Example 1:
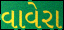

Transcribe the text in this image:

વાવેરા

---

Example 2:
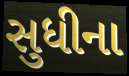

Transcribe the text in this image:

સુધીના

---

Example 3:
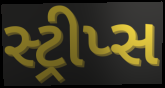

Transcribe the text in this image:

સ્ટ્રીપ્સ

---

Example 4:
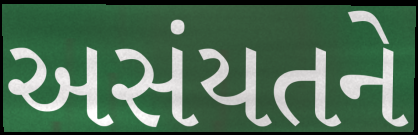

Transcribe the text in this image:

અસંયતને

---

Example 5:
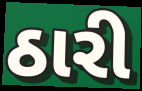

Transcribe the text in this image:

ઠારી